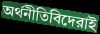
অর্থনীতিবিদেরাই